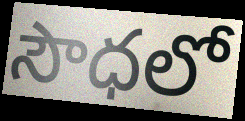
సౌధలో